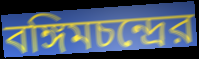
বঙ্গিমচন্দ্রের